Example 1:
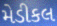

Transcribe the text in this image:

મેડીકલ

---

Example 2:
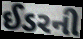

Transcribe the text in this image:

ઈડરની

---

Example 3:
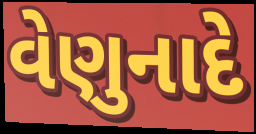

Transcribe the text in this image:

વેણુનાદે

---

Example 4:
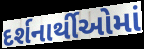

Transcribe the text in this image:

દર્શનાર્થીઓમાં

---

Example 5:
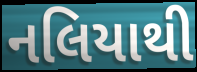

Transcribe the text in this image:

નલિયાથી